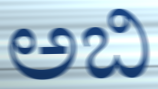
ಅಬಿ